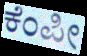
ಕೆಂಪೀ